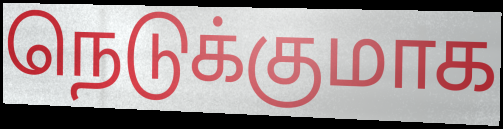
நெடுக்குமாக